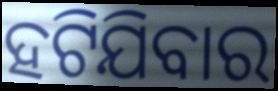
ହଟିଯିବାର